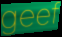
geef